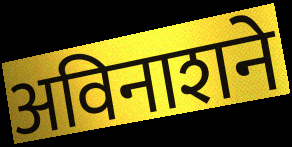
अविनाशने